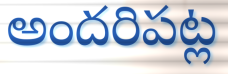
అందరిపట్ల